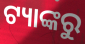
ଟ୍ୟାଙ୍କରୁ